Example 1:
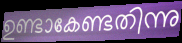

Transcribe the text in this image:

ഉണ്ടാകേണ്ടതിന്നു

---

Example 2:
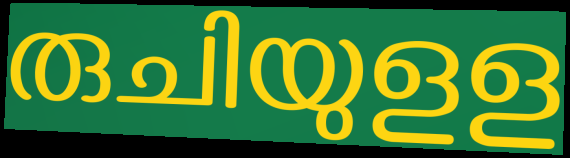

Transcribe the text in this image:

രുചിയുളള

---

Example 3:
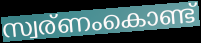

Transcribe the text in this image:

സ്വര്ണംകൊണ്ട്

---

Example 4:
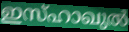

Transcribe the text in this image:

ഇസ്ഹാഖുൽ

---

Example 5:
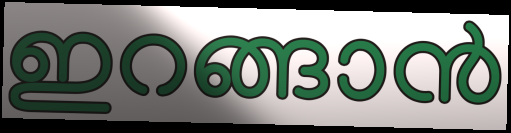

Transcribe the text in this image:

ഇറങ്ങാൻ